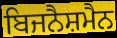
ਬਿਜਨੈਸ਼ਮੈਨ